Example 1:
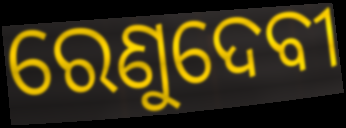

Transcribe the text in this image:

ରେଣୁଦେବୀ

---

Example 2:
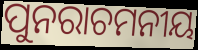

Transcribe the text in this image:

ପୁନରାଚମନୀୟ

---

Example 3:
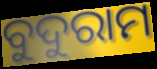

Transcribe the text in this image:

ବୁଦୁରାମ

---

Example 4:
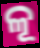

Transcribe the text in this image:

ଳୂ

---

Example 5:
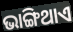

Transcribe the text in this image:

ଭାଙ୍ଗିଥାଏ